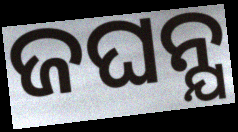
ଜଘନ୍ଯ